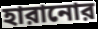
হারানোর